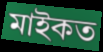
মাইকত